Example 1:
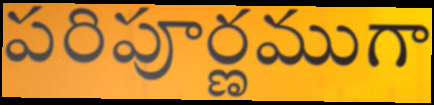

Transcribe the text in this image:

పరిపూర్ణముగా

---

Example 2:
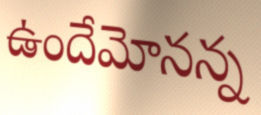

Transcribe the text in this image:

ఉందేమోనన్న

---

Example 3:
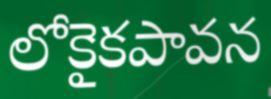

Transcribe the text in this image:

లోకైకపావన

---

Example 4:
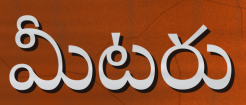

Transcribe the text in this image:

మీటరు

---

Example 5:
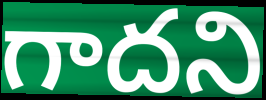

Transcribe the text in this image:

గాదని